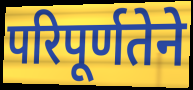
परिपूर्णतेने